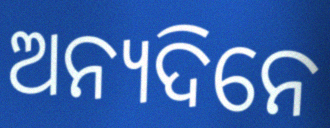
ଅନ୍ୟଦିନେ